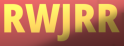
RWJRR